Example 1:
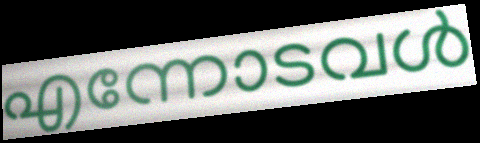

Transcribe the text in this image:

എന്നോടവൾ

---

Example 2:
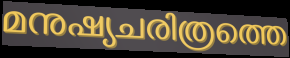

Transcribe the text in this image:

മനുഷ്യചരിത്രത്തെ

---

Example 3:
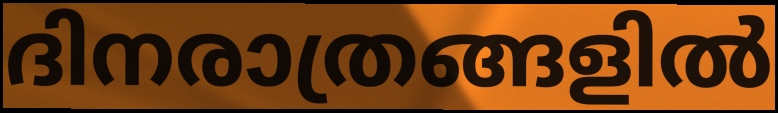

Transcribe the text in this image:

ദിനരാത്രങ്ങളിൽ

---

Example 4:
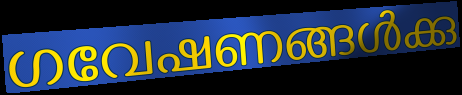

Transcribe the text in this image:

ഗവേഷണങ്ങൾക്കു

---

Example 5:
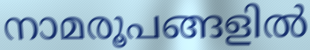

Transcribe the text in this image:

നാമരൂപങ്ങളിൽ